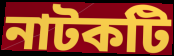
নাটকটি